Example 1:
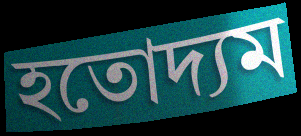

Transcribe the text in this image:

হতোদ্যম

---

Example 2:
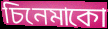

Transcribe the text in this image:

চিনেমাকো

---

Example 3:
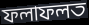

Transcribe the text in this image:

ফলাফলত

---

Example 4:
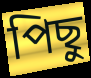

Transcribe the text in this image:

পিছু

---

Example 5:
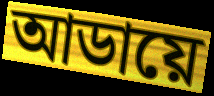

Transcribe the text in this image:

আডায়ে